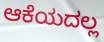
ಆಕೆಯದಲ್ಲ